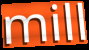
mill